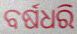
ବର୍ଷଧରି